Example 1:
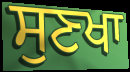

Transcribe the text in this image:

ਸੁਣਖਾ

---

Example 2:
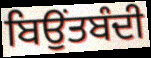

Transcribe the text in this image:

ਬਿਉਂਤਬੰਦੀ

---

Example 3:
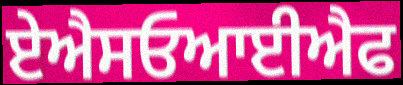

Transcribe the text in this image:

ਏਐਸਓਆਈਐਫ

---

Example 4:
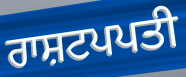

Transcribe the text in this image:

ਰਾਸ਼ਟਪਪਤੀ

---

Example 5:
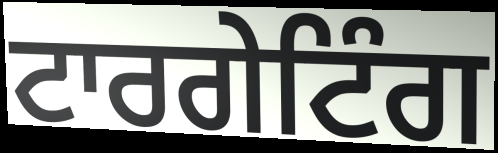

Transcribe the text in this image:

ਟਾਰਗੇਟਿੰਗ